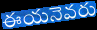
ఈయనెవరు